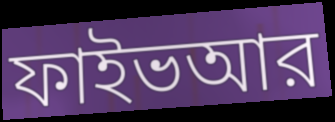
ফাইভআর